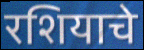
रशियाचे